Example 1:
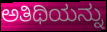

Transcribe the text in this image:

ಅತಿಥಿಯನ್ನು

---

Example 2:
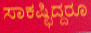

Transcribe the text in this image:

ಸಾಕಷ್ಟಿದ್ದರೂ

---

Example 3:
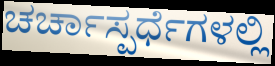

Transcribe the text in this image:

ಚರ್ಚಾಸ್ಪರ್ಧೆಗಳಲ್ಲಿ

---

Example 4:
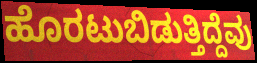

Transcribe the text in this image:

ಹೊರಟುಬಿಡುತ್ತಿದ್ದೆವು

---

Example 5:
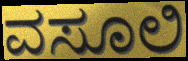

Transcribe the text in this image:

ವಸೂಲಿ